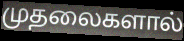
முதலைகளால்